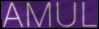
AMUL